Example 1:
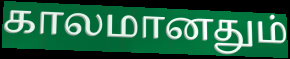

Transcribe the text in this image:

காலமானதும்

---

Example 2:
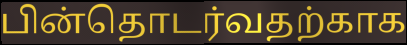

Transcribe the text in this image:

பின்தொடர்வதற்காக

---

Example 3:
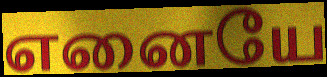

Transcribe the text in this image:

எனையே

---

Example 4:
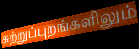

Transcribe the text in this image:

சுற்றுப்புறங்களிலும்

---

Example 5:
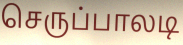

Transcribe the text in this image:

செருப்பாலடி